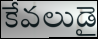
కేవలుడై